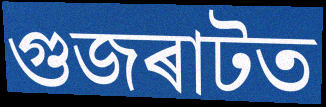
গুজৰাটত